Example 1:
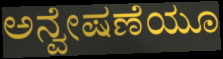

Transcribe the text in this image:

ಅನ್ವೇಷಣೆಯೂ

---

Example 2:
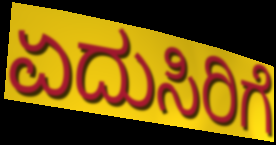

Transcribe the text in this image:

ಏದುಸಿರಿಗೆ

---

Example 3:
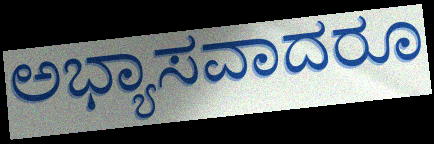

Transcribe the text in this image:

ಅಭ್ಯಾಸವಾದರೂ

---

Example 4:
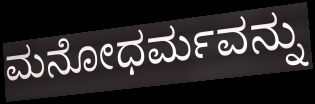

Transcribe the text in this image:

ಮನೋಧರ್ಮವನ್ನು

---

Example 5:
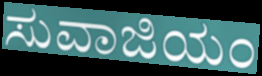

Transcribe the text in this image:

ಸುವಾಜಿಯಂ